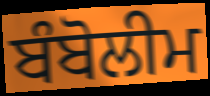
ਬੰਬੋਲੀਮ